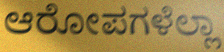
ಆರೋಪಗಳೆಲ್ಲಾ